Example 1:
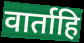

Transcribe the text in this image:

वार्ताहि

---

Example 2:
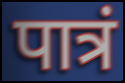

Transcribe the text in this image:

पात्रं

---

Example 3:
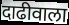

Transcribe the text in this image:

दाढीवाला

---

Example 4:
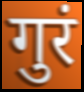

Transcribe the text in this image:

गुरं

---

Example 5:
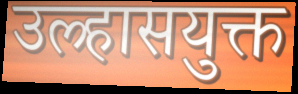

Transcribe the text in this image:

उल्हासयुक्त